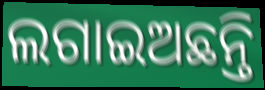
ଲଗାଇଅଛନ୍ତି